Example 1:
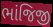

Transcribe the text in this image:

ભાંજિજી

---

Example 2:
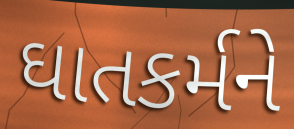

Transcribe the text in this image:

ઘાતકર્મને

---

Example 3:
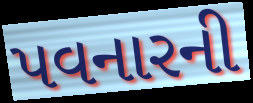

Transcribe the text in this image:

પવનારની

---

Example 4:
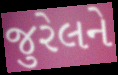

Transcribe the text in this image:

જુરેલને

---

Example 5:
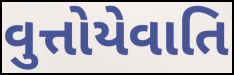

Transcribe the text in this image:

વુત્તોયેવાતિ